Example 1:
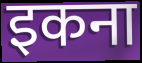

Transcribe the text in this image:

इकना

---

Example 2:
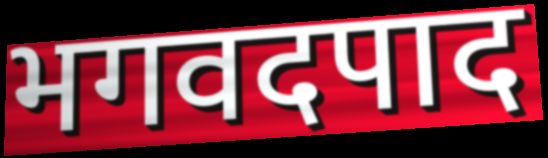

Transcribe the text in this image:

भगवदपाद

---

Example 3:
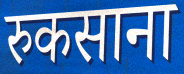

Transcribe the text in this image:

रुकसाना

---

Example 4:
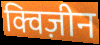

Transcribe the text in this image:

क्विज़ीन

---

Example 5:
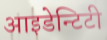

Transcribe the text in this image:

आइडेन्टिटी